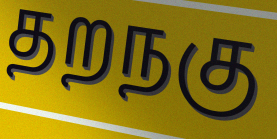
தறநகு